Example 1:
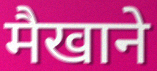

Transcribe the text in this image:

मैखाने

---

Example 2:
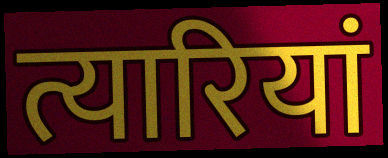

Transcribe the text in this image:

त्यारियां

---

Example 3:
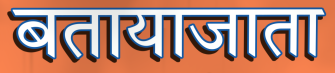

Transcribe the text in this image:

बतायाजाता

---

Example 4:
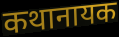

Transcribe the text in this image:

कथानायक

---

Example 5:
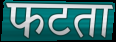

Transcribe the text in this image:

फटता